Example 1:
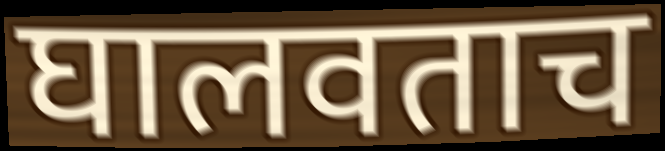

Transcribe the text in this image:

घालवताच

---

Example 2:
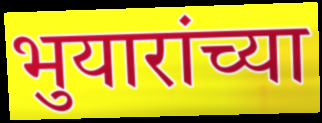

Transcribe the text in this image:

भुयारांच्या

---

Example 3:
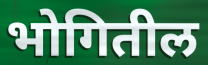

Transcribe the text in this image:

भोगितील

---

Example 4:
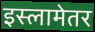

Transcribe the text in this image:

इस्लामेतर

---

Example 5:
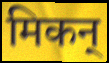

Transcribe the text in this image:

मिकन्